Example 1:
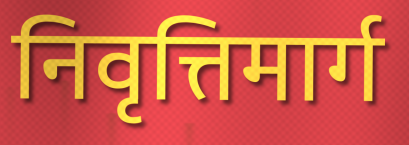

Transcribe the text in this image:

निवृत्तिमार्ग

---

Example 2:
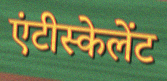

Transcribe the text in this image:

एंटीस्केलेंट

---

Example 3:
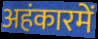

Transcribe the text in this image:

अहंकारमें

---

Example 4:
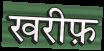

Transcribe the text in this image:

खरीफ़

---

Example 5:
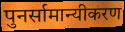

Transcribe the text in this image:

पुनर्सामान्यीकरण